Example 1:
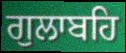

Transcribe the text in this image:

ਗੁਲਾਬਹਿ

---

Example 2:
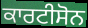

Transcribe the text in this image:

ਕਾਰਟੀਸੋਨ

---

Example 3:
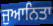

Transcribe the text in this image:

ਜੁਆਨਿਤਾ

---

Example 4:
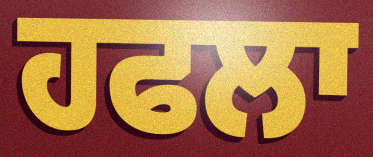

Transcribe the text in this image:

ਹਫਲਾ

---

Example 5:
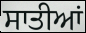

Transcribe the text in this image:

ਸਾਤੀਆਂ